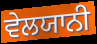
ਵੇਲਯਾਨੀ